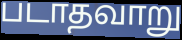
படாதவாறு